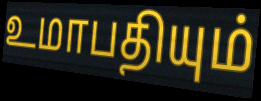
உமாபதியும்